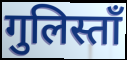
गुलिस्ताँ